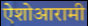
ऐशोआरामी